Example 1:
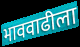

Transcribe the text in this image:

भाववाढीला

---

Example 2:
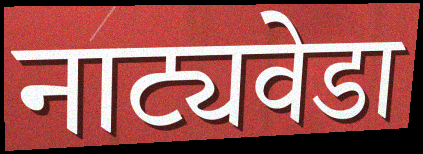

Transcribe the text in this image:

नाट्यवेडा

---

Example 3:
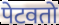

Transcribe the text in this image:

पेटवतो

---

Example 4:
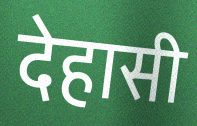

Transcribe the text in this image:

देहासी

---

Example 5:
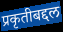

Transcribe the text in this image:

प्रकृतीबद्दल